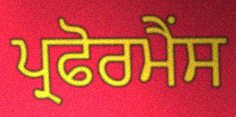
ਪ੍ਰਫੋਰਮੈਂਸ